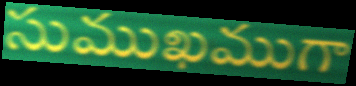
సుముఖముగా